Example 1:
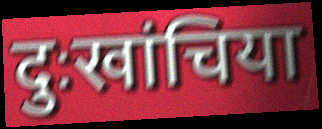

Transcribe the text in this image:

दुःखांचिया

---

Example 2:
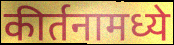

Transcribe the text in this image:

कीर्तनामध्ये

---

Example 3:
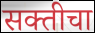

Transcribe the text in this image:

सक्तीचा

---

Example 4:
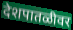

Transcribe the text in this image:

देशपातळीवर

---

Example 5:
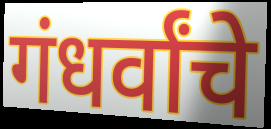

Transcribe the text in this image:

गंधर्वांचे